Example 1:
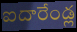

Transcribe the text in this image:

ఐదారేండ్ల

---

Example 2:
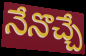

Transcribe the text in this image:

నేనొచ్చే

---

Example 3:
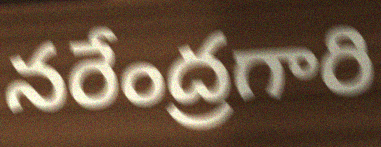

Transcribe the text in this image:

నరేంద్రగారి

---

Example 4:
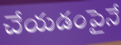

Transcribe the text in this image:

చేయడంపైనే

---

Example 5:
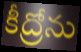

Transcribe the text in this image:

కీద్రోను